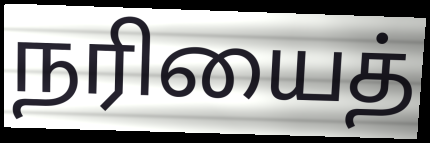
நரியைத்